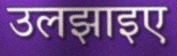
उलझाइए